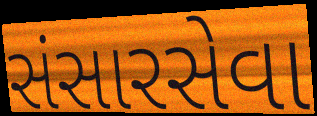
સંસારસેવા